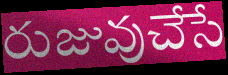
రుజువుచేసే